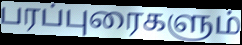
பரப்புரைகளும்